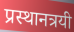
प्रस्थानत्रयी